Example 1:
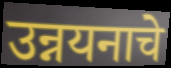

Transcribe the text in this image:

उन्नयनाचे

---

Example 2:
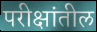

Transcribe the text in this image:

परीक्षांतील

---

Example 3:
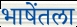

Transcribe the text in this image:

भाषेंतला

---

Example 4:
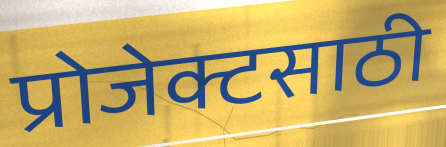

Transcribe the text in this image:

प्रोजेक्टसाठी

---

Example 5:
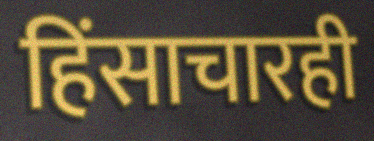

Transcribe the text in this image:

हिंसाचारही